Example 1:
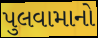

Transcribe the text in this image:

પુલવામાનો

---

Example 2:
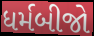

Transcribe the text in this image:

ધર્મબીજો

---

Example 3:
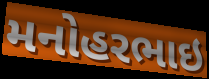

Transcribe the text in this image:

મનોહરભાઇ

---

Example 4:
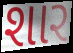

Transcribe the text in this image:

શાર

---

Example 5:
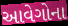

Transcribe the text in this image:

આવેગોના